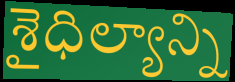
శైధిల్యాన్ని